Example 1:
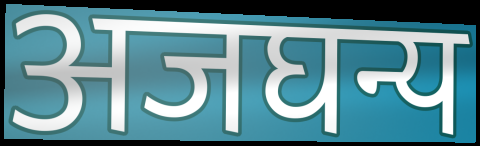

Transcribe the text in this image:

अजघन्य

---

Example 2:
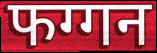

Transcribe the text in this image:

फग्गन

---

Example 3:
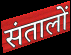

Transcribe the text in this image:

संतालों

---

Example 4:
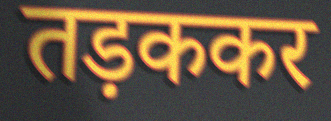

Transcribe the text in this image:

तड़ककर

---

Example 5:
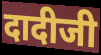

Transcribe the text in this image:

दादीजी